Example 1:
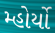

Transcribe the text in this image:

મ્હોર્યો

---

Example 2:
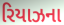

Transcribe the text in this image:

રિયાઝના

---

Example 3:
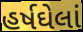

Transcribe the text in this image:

હર્ષઘેલાં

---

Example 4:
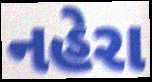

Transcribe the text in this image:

નહેરા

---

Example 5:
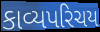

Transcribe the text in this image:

કાવ્યપરિચય